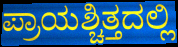
ಪ್ರಾಯಶ್ಚಿತ್ತದಲ್ಲಿ